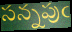
సన్నపుఁ